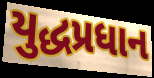
યુદ્ધપ્રધાન